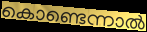
കൊണ്ടെന്നാൽ